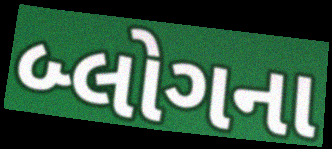
બ્લોગના